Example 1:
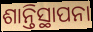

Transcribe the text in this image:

ଶାନ୍ତିସ୍ଥାପନା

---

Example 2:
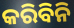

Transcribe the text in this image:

କରିବିନି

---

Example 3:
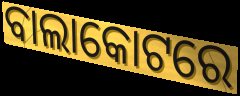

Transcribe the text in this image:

ବାଲାକୋଟରେ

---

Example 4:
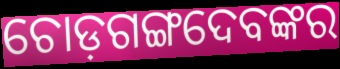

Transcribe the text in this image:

ଚୋଡ଼ଗଙ୍ଗଦେବଙ୍କର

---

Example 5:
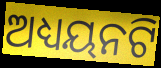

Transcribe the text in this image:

ଅଧ୍ୟୟନଟି